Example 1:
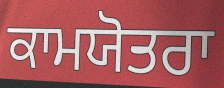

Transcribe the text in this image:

ਕਾਮਯੋਤਰਾ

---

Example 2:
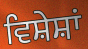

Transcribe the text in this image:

ਵਿਸ਼ੇਸ਼ਾਂ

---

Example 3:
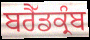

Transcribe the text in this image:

ਬਰੈੱਡਕ੍ਰੰਬ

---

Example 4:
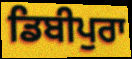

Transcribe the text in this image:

ਡਿਬੀਪੁਰਾ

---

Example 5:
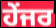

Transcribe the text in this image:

ਹੇਂਜਰ